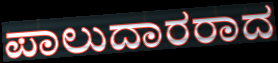
ಪಾಲುದಾರರಾದ